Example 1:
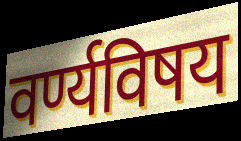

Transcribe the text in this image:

वर्ण्यविषय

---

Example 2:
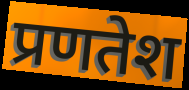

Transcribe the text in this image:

प्रणतेश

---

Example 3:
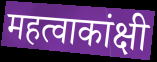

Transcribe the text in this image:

महत्वाकांक्षी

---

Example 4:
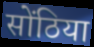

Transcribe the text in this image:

सोंठिया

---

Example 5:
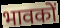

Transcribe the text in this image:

भावकों